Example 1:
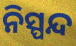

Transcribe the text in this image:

ନିସ୍ପନ୍ଦ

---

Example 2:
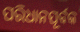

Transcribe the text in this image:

ପରିଧାନପୂର୍ବକ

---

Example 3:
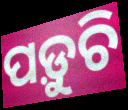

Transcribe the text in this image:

ପଡ଼ୁଚି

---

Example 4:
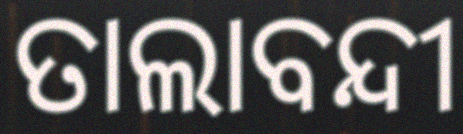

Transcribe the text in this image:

ତାଲାବନ୍ଦୀ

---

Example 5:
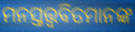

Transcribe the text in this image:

ମନସ୍ତତ୍ତ୍ୱବିତମାନଙ୍କ